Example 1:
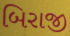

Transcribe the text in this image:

બિરાજી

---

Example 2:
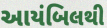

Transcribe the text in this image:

આયંબિલથી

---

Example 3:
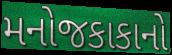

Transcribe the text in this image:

મનોજકાકાનો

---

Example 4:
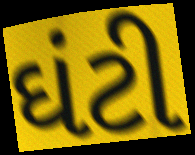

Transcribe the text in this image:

ઘંટી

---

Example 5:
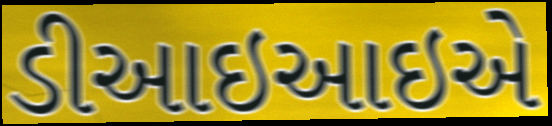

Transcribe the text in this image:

ડીઆઇઆઇએ